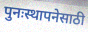
पुनःस्थापनेसाठी